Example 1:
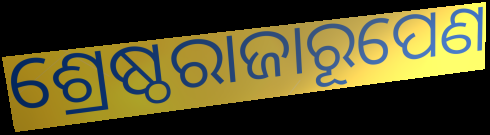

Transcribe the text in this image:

ଶ୍ରେଷ୍ଠରାଜାରୂପେଣ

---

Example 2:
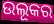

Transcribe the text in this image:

ଉଲୂକର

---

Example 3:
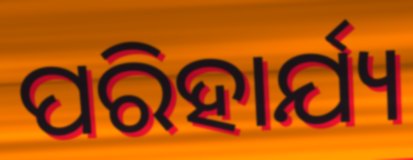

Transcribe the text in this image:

ପରିହାର୍ଯ୍ୟ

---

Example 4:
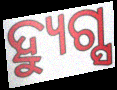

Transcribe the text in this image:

ହ୍ୟୁଗ୍ସ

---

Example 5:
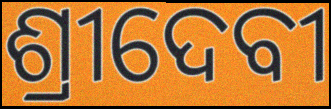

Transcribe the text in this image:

ଶ୍ରୀଦେବୀ